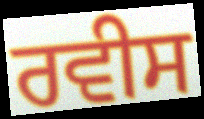
ਰਵੀਸ